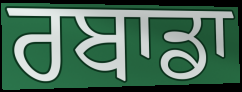
ਰਬਾਡਾ